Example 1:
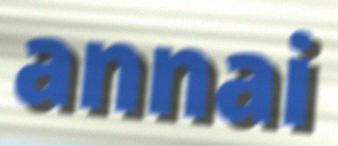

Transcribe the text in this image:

annai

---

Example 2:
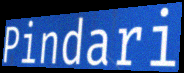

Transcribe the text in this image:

Pindari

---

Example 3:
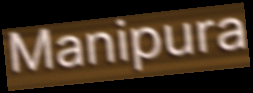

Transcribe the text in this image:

Manipura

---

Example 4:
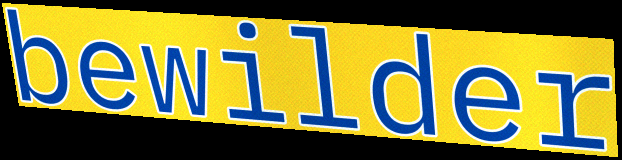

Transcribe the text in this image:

bewilder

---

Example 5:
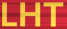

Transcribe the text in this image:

LHT